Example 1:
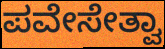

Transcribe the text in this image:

ಪವೇಸೇತ್ವಾ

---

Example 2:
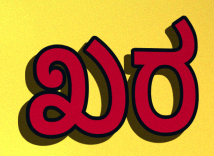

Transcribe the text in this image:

ಖರ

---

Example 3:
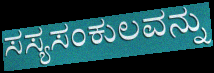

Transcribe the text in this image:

ಸಸ್ಯಸಂಕುಲವನ್ನು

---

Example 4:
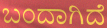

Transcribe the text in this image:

ಬಂದಾಗಿದೆ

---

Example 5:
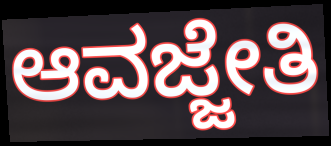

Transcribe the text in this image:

ಆವಜ್ಜೇತಿ